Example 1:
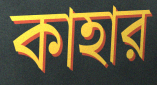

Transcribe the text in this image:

কাহার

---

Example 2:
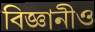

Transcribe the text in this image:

বিজ্ঞানীও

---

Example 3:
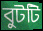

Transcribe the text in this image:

বুটটি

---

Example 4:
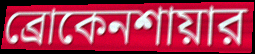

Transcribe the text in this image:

ব্রোকেনশায়ার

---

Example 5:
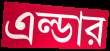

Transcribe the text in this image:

এল্ডার